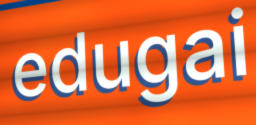
edugai